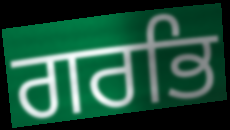
ਗਰਭਿ